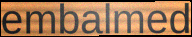
embalmed